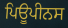
ਪਿਊਪੀਨਸ